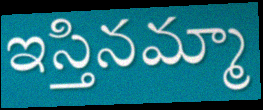
ఇస్తినమ్మా